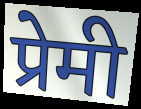
प्रेमी